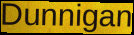
Dunnigan